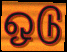
ஒடு